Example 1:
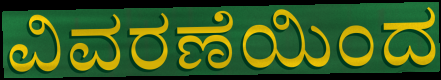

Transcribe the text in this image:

ವಿವರಣೆಯಿಂದ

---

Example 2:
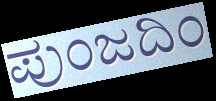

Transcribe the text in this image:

ಪುಂಜದಿಂ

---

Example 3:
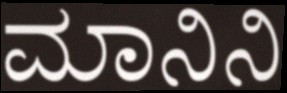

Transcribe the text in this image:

ಮಾನಿನಿ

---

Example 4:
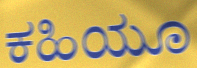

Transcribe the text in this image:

ಕಹಿಯೂ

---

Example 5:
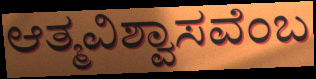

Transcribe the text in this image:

ಆತ್ಮವಿಶ್ವಾಸವೆಂಬ